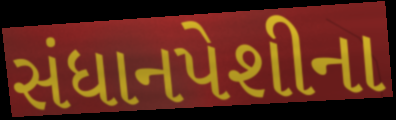
સંધાનપેશીના